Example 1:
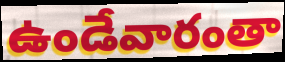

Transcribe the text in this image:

ఉండేవారంతా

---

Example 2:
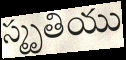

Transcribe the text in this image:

స్మృతియు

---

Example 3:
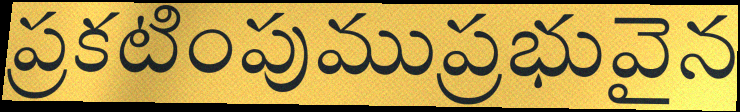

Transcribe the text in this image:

ప్రకటింపుముప్రభువైన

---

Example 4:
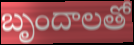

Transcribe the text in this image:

బృందాలతో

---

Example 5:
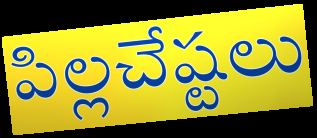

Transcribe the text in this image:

పిల్లచేష్టలు